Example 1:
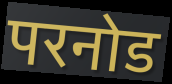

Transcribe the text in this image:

परनोड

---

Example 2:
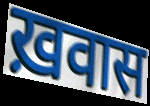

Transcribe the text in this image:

ख़वास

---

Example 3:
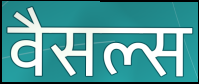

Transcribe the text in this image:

वैसल्स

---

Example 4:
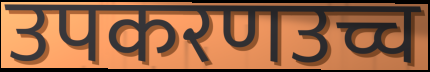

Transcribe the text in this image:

उपकरणउच्च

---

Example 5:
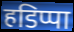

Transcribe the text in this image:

हडिप्पा